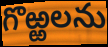
గొఱ్ఱలను